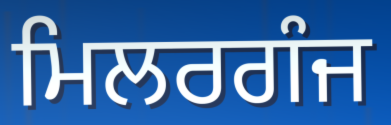
ਮਿਲਰਗੰਜ